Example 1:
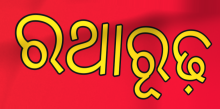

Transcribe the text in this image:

ରଥାରୂଢ଼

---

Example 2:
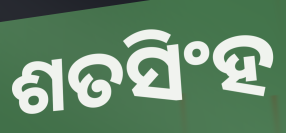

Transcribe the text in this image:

ଶତସିଂହ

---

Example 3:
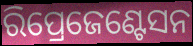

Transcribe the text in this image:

ରିପ୍ରେଜେଣ୍ଟେସନ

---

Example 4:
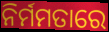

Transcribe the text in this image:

ନିର୍ମମତାରେ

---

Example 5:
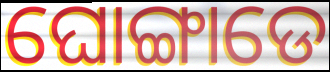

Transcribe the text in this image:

ଘୋଙ୍ଗାଡେ